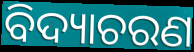
ବିଦ୍ୟାଚରଣ